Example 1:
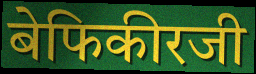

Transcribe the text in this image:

बेफिकीरजी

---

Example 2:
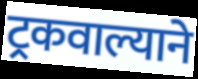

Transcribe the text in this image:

ट्रकवाल्याने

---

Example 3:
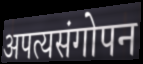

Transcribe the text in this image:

अपत्यसंगोपन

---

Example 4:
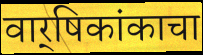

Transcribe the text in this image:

वार्षिकांकाचा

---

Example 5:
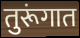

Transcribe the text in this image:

तुरूंगात